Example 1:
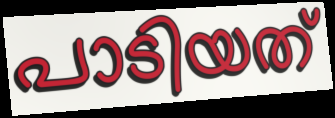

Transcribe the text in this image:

പാടിയത്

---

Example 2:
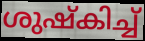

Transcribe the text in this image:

ശുഷ്കിച്ച്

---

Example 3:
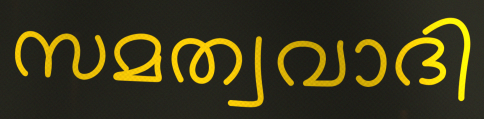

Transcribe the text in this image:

സമത്വവാദി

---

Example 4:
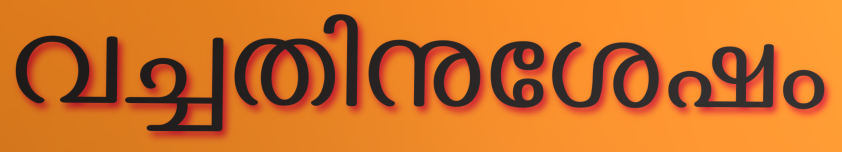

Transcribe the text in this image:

വച്ചതിനുശേഷം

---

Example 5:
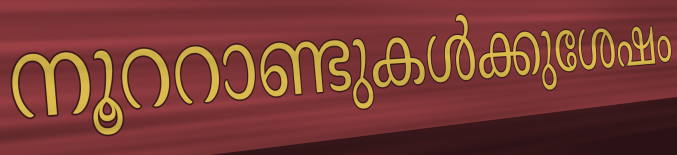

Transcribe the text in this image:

നൂററാണ്ടുകൾക്കുശേഷം